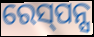
ରେସ୍‌ପନ୍ସ